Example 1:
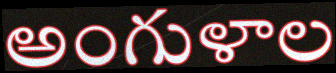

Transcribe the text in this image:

అంగుళాల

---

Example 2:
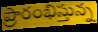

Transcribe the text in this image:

ప్రారంభిస్తున్న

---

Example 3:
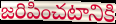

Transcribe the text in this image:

జరిపించటానికి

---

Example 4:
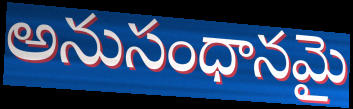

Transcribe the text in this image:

అనుసంధానమై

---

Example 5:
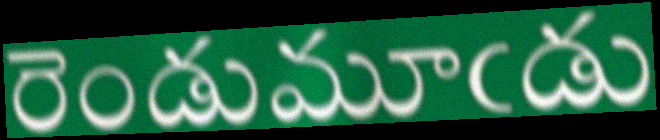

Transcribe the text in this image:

రెండుమూఁడు